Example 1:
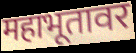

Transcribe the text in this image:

महाभूतावर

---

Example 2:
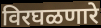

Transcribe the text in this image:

विरघळणारे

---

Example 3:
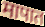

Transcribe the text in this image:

मापात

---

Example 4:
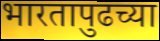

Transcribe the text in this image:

भारतापुढच्या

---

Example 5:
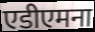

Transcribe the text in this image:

एडीएमना